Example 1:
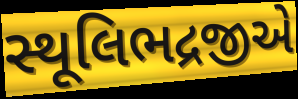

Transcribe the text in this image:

સ્થૂલિભદ્રજીએ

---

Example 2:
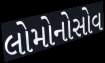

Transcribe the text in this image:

લોમોનોસોવ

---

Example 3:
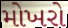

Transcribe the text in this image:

મોખરો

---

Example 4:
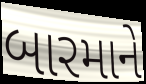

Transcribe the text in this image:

બારમાને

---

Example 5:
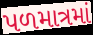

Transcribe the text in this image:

પળમાત્રમાં